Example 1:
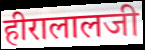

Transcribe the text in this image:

हीरालालजी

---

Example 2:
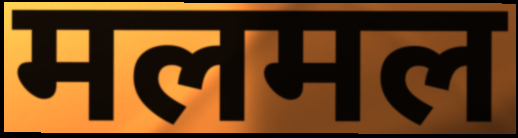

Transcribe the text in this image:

मलमल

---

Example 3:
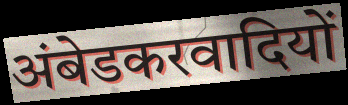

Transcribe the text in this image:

अंबेडकरवादियों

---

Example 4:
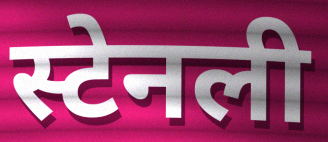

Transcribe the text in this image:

स्टेनली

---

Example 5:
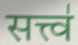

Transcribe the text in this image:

सत्त्व॑